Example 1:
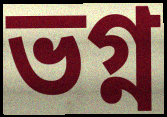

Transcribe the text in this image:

ভগ্ন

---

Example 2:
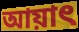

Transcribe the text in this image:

আয়াৎ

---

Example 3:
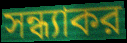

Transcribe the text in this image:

সন্ধ্যাকর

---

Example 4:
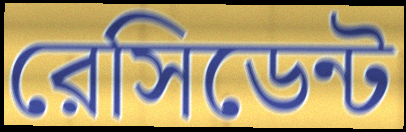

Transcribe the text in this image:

রেসিডেন্ট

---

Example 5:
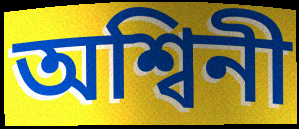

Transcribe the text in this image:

অশ্বিনী